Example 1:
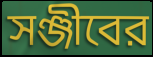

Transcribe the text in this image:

সঞ্জীবের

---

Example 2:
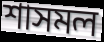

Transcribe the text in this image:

শাসমল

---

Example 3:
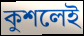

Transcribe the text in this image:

কুশলেই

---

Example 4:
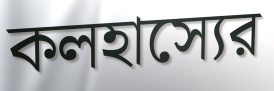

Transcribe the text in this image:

কলহাস্যের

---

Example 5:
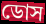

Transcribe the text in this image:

ডোস